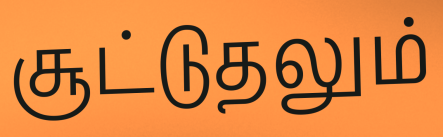
சூட்டுதலும்